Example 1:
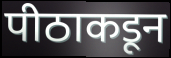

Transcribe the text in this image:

पीठाकडून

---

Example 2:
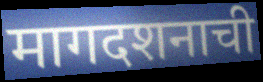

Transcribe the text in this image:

मागदशनाची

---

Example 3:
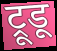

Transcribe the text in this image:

ट्रूडू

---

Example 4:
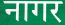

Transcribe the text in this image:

नागर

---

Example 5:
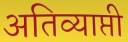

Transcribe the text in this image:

अतिव्याप्ती